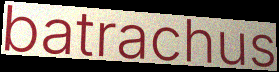
batrachus